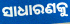
ସାଧାରଣକୁ